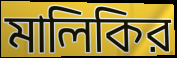
মালিকির